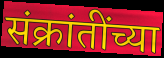
संक्रांतींच्या